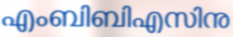
എംബിബിഎസിനു